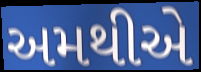
અમથીએ